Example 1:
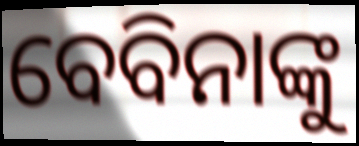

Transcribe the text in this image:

ବେବିନାଙ୍କୁ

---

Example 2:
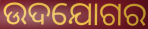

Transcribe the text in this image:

ଉଦଯୋଗର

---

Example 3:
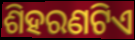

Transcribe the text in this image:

ଶିହରଣଟିଏ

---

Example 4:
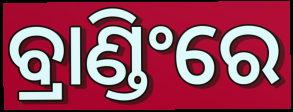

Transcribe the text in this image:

ବ୍ରାଣ୍ଡିଂରେ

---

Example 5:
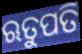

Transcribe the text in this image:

ଋତୁପତି